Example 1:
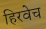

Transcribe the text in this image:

हिरवेच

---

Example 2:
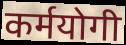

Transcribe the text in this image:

कर्मयोगी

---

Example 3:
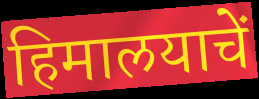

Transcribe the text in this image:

हिमालयाचें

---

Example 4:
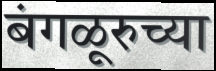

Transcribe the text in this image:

बंगळूरुच्या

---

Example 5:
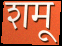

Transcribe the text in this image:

शमू